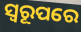
ସ୍ଵରୂପରେ